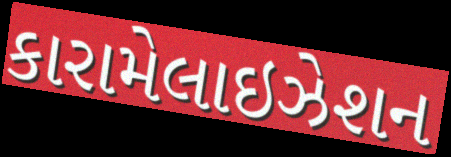
કારામેલાઇઝેશન